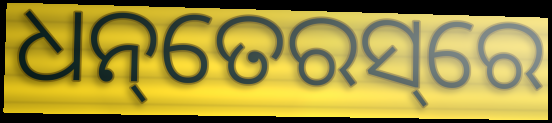
ଧନ୍‌ତେରସ୍‌ରେ